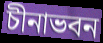
চীনাভবন